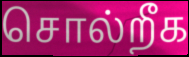
சொல்றீக